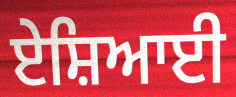
ਏਸ਼ਿਆਈ